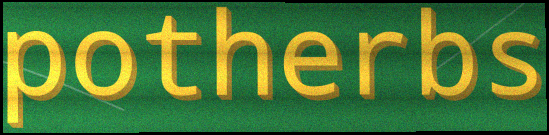
potherbs